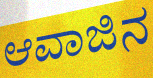
ಆವಾಜಿನ